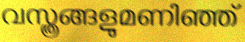
വസ്ത്രങ്ങളുമണിഞ്ഞ്